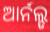
ଆର୍ନଲ୍ଡ